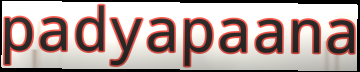
padyapaana